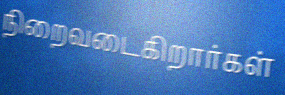
நிறைவடைகிறார்கள்